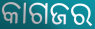
କାଗଜର